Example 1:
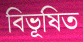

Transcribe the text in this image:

বিভূষিত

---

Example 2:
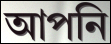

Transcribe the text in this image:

আপনি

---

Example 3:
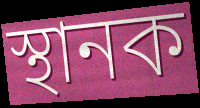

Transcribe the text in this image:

স্থানক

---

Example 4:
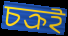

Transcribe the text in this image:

চক্ৰই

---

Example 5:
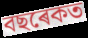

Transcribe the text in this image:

বছৰেকত